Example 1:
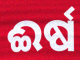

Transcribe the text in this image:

ଈର୍ଷ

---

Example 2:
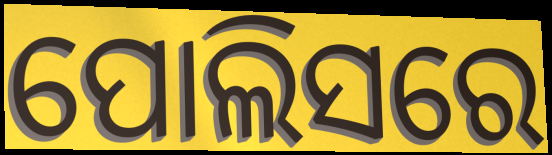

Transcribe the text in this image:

ପୋଲିସରେ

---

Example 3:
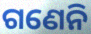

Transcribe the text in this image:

ଗଣେନି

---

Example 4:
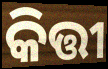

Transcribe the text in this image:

କିତ୍ତୀ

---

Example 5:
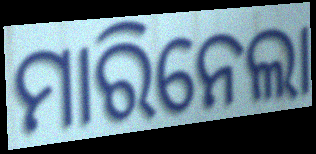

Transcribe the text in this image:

ମାରିନେଲା